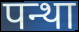
पन्‍था